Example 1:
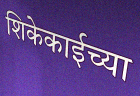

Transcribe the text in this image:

शिकेकाईच्या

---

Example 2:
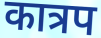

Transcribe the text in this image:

कात्रप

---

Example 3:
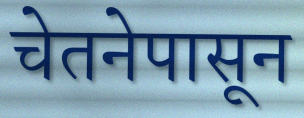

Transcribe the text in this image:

चेतनेपासून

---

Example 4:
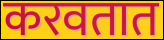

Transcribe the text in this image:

करवतात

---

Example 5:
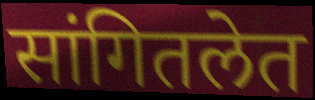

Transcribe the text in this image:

सांगितलेत